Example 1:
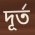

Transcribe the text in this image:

দূর্ত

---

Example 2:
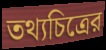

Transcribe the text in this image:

তথ্যচিত্রের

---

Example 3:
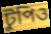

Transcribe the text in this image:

টুপিও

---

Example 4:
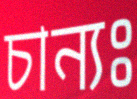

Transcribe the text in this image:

চান্যঃ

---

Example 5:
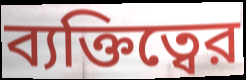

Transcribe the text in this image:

ব্যক্তিত্বের